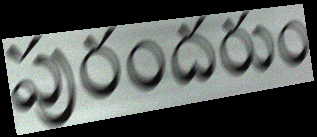
పురందరుం